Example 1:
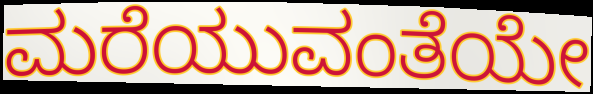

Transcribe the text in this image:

ಮರೆಯುವಂತೆಯೇ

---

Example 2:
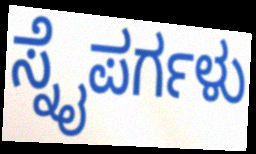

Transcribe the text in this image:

ಸ್ನೈಪರ್ಗಳು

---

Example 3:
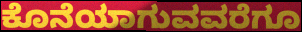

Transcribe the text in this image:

ಕೊನೆಯಾಗುವವರೆಗೂ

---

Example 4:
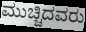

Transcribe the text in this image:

ಮುಚ್ಚಿದವರು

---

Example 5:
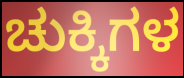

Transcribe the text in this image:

ಚುಕ್ಕಿಗಳ